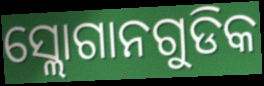
ସ୍ଲୋଗାନଗୁଡିକ